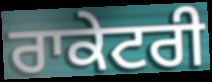
ਰਾਕੇਟਰੀ